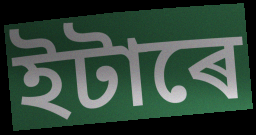
ইটাৰে